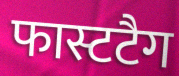
फास्टटैग